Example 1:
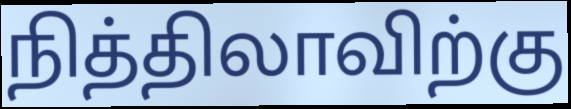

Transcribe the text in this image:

நித்திலாவிற்கு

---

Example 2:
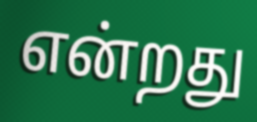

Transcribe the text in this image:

என்றது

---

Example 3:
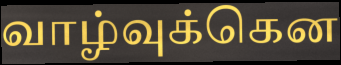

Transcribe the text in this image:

வாழ்வுக்கென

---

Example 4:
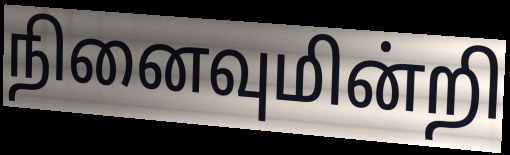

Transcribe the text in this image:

நினைவுமின்றி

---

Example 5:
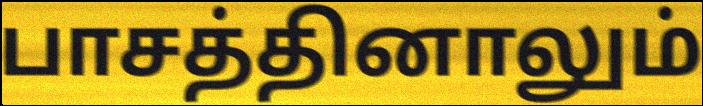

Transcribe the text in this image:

பாசத்தினாலும்